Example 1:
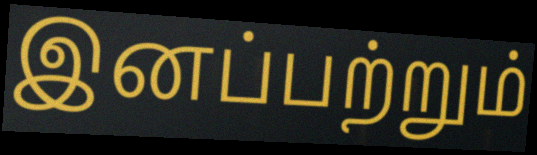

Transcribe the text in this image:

இனப்பற்றும்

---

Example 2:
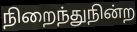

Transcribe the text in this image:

நிறைந்துநின்ற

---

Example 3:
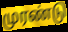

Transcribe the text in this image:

முரண்டு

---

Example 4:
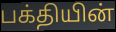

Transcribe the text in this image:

பக்தியின்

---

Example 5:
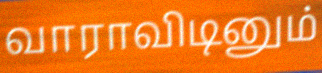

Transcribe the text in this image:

வாராவிடினும்